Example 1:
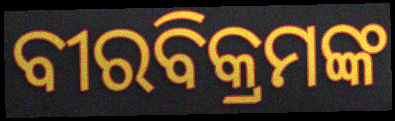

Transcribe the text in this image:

ବୀରବିକ୍ରମଙ୍କ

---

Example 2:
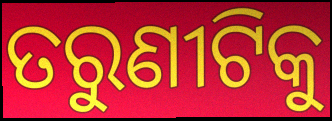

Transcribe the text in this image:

ତରୁଣୀଟିକୁ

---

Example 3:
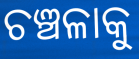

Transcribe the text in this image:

ଚଞ୍ଚଳାକୁ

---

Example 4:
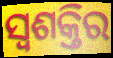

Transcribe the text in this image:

ସ୍ଵଶକ୍ତିର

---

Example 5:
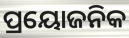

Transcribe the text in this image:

ପ୍ରୟୋଜନିକ